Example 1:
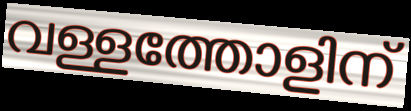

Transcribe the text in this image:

വള്ളത്തോളിന്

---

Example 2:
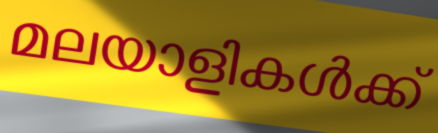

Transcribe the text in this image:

മലയാളികൾക്ക്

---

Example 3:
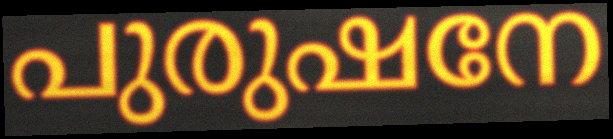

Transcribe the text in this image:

പുരുഷനേ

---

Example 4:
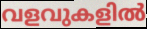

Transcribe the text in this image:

വളവുകളിൽ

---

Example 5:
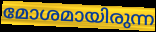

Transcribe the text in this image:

മോശമായിരുന്ന